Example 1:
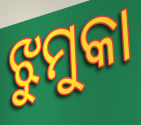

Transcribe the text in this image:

ଝୁମୁକା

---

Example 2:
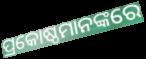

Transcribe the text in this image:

ପ୍ରକୋଷ୍ଠମାନଙ୍କରେ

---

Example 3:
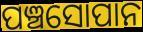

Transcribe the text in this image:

ପଞ୍ଚସୋପାନ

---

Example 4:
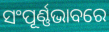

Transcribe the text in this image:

ସଂପୂର୍ଣ୍ଣଭାବରେ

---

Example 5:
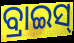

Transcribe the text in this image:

ବ୍ରାଇସ୍